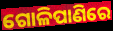
ଗୋଳିପାଣିରେ